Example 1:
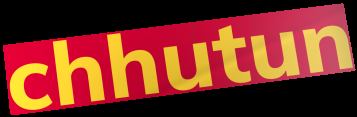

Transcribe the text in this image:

chhutun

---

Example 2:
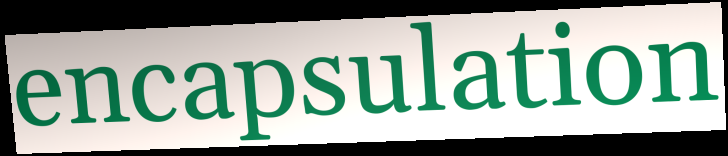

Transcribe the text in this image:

encapsulation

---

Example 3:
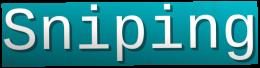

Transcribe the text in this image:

Sniping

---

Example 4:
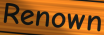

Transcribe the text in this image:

Renown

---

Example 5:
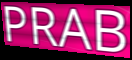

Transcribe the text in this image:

PRAB